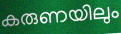
കരുണയിലും